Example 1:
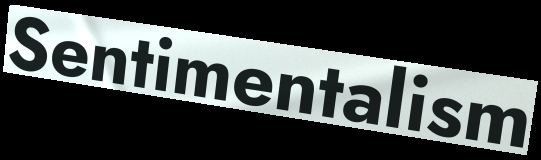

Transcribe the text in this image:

Sentimentalism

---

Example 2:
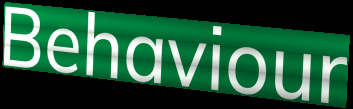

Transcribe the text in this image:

Behaviour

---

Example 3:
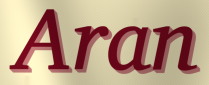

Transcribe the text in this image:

Aran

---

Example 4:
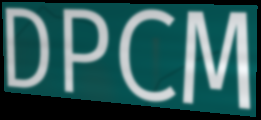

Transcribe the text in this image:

DPCM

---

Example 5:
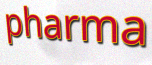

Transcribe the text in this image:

pharma